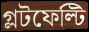
গ্লটফেল্টি